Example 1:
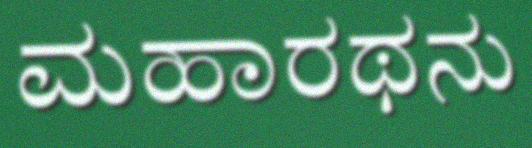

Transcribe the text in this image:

ಮಹಾರಥನು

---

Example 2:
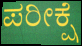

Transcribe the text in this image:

ಪರೀಕ್ಷೆ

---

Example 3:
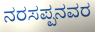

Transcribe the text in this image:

ನರಸಪ್ಪನವರ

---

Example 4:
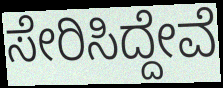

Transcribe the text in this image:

ಸೇರಿಸಿದ್ದೇವೆ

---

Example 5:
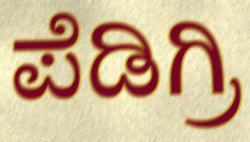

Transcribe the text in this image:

ಪೆಡಿಗ್ರಿ